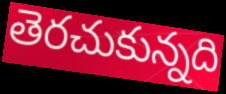
తెరచుకున్నది